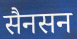
सैनसन